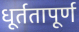
धूर्ततापूर्ण